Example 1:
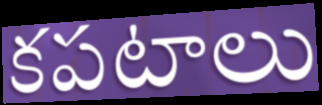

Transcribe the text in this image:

కపటాలు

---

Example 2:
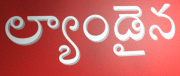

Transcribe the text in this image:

ల్యాండైన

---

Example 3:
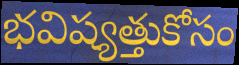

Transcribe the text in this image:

భవిష్యత్తుకోసం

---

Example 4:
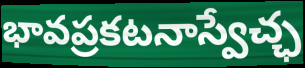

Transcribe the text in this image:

భావప్రకటనాస్వేచ్ఛ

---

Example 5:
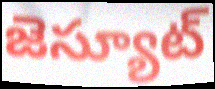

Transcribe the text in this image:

జెస్యూట్